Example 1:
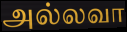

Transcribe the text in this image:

அல்லவா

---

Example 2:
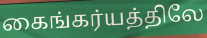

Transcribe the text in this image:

கைங்கர்யத்திலே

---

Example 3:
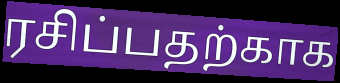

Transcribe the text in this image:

ரசிப்பதற்காக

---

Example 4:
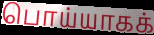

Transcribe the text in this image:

பொய்யாகக்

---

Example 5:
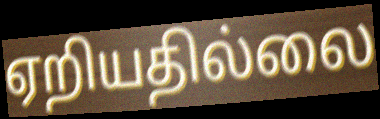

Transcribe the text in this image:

ஏறியதில்லை